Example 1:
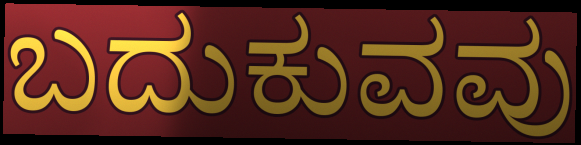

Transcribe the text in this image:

ಬದುಕುವವು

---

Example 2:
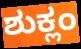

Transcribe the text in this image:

ಶುಕ್ಲಂ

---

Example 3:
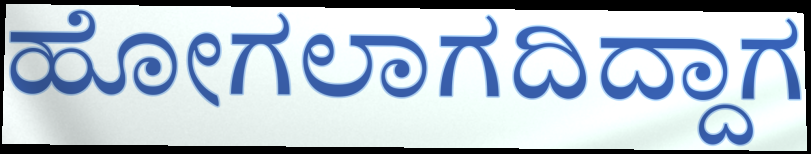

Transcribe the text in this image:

ಹೋಗಲಾಗದಿದ್ದಾಗ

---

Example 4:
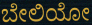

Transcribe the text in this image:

ಬೇಲಿಯೋ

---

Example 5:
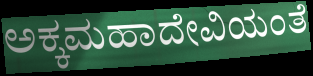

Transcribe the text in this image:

ಅಕ್ಕಮಹಾದೇವಿಯಂತೆ